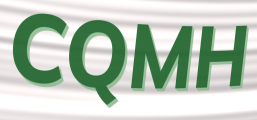
CQMH